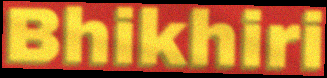
Bhikhiri